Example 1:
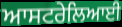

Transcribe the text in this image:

ਆਸਟਰੇਲਿਆਈ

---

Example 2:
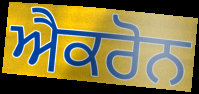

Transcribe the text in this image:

ਐਕਰੋਨ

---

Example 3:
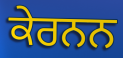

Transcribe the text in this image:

ਕੇਰਨਨ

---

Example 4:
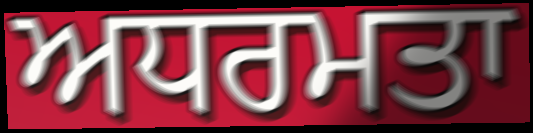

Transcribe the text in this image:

ਅਧਰਮਤਾ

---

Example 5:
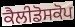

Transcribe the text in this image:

ਕੈਲੀਡੋਸਕੋਪ